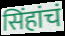
सिंहांचं